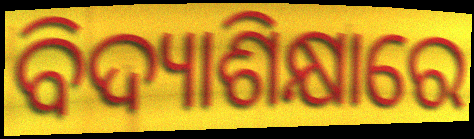
ବିଦ୍ୟାଶିକ୍ଷାରେ